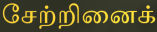
சேற்றினைக்